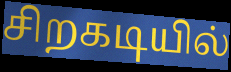
சிறகடியில்